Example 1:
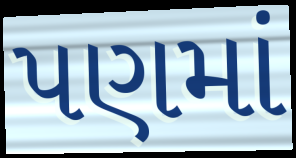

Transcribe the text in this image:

પણમાં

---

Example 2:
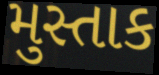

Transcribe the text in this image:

મુસ્તાક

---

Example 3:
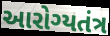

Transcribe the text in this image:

આરોગ્યતંત્ર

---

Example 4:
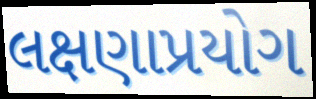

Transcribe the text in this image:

લક્ષણાપ્રયોગ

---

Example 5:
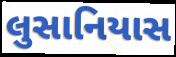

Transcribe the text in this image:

લુસાનિયાસ